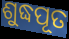
ଶୁଦ୍ଧପୂତ